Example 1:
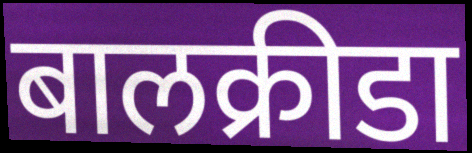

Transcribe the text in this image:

बालक्रीडा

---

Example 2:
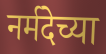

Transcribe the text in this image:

नर्मदेच्या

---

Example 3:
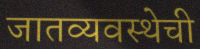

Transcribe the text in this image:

जातव्यवस्थेची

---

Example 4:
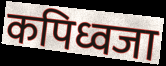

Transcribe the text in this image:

कपिध्वजा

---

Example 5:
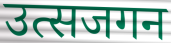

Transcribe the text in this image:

उत्सजगन